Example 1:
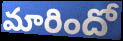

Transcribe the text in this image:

మారిందో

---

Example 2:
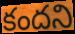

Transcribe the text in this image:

కందని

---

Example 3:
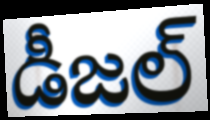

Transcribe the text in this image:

డీజల్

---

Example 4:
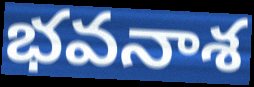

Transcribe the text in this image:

భవనాశ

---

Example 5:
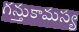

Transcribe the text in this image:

గన్తుకామస్య